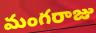
మంగరాజు